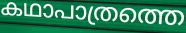
കഥാപാത്രത്തെ